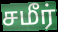
சமீர்